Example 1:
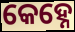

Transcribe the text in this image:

କେହ୍ନେ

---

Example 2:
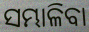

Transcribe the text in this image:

ସମ୍ଭାଳିବା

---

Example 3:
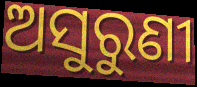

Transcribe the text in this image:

ଅସୁରୁଣୀ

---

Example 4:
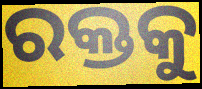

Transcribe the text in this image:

ରକ୍ତକୁ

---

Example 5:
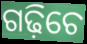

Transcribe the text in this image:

ଗଢ଼ିଚେ